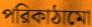
পরিকাঠামো